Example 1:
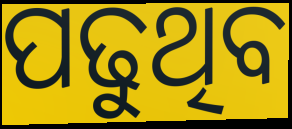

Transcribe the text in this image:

ପଢୁଥିବ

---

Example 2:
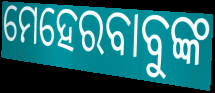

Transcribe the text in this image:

ମେହେରବାବୁଙ୍କ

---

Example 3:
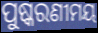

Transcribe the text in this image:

ପୁଷ୍କରଣୀମୟ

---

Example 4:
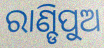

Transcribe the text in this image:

ରାଣ୍ଡିପୁଅ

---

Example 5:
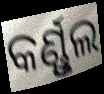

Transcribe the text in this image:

କର୍ଣ୍ଣୁଲ